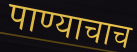
पाण्याचाच